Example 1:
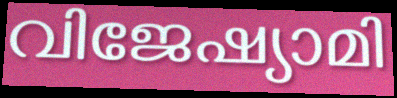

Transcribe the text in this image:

വിജേഷ്യാമി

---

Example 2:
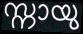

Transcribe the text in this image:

സ്നായു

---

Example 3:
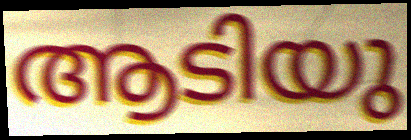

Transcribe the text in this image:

ആടിയു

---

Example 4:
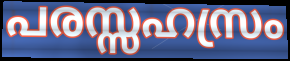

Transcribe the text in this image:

പരസ്സഹസ്രം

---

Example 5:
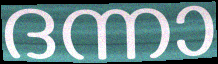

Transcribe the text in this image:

ദന്നാ